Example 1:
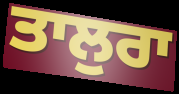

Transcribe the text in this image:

ਤਾਲੁਰਾ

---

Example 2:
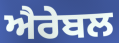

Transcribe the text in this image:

ਐਰੇਬਲ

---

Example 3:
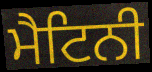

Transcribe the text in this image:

ਮੈਟਿਨੀ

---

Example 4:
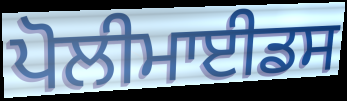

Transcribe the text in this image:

ਪੋਲੀਮਾਈਡਸ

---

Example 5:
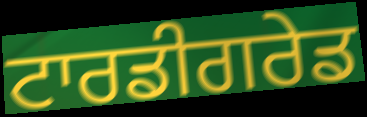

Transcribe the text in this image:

ਟਾਰਡੀਗਰੇਡ